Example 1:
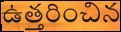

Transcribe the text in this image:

ఉత్తరించిన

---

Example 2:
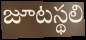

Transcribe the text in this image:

జూటస్థలి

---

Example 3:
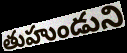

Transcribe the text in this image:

తుహుండుని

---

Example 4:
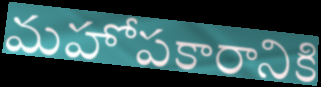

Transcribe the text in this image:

మహోపకారానికి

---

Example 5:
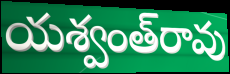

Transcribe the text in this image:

యశ్వంత్‌రావు